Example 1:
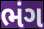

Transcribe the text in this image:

ભંગ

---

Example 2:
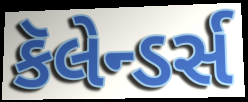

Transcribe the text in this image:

કૅલેન્ડર્સ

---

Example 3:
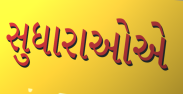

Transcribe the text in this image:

સુધારાઓએ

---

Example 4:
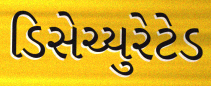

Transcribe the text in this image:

ડિસેચ્યુરેટેડ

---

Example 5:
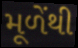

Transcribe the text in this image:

મૂળેંથી